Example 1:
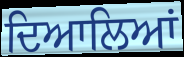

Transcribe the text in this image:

ਦਿਆਲਿਆਂ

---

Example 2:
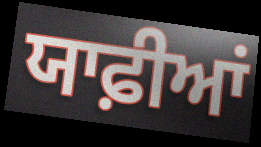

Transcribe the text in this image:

ਯਾਫ਼ੀਆਂ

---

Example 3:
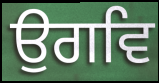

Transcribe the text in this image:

ਉਗਵਿ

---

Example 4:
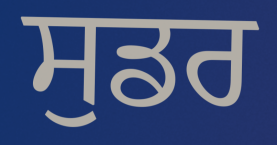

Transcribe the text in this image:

ਸੁਡਰ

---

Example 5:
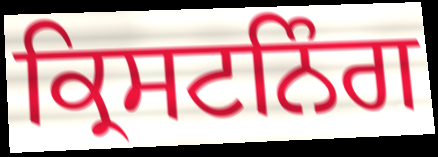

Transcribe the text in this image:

ਕ੍ਰਿਸਟਨਿੰਗ